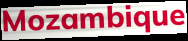
Mozambique